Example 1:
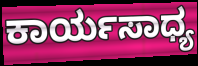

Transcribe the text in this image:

ಕಾರ್ಯಸಾಧ್ಯ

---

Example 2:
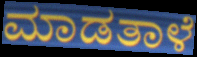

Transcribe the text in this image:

ಮಾಡತಾಳೆ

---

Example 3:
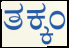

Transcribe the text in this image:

ತಕ್ಕಂ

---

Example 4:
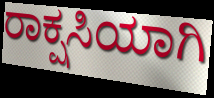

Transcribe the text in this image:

ರಾಕ್ಷಸಿಯಾಗಿ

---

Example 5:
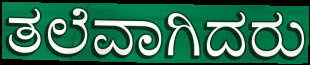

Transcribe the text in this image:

ತಲೆವಾಗಿದರು